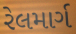
રેલમાર્ગ